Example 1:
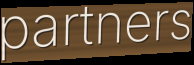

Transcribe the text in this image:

partners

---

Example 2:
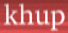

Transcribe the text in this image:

khup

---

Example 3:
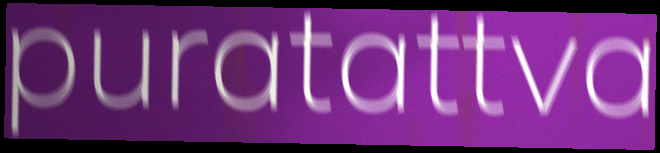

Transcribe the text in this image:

puratattva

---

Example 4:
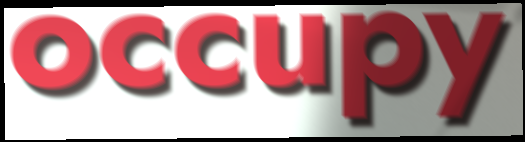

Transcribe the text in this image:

occupy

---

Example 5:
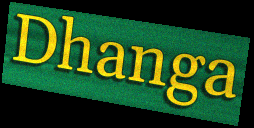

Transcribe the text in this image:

Dhanga